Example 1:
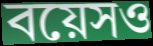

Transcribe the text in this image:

বয়েসও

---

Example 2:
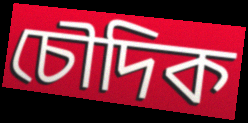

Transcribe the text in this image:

চৌদিক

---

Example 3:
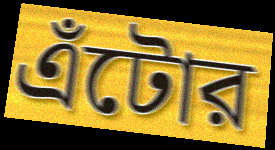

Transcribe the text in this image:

এঁটোর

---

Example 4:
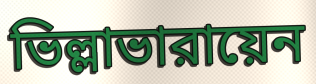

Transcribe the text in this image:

ভিল্লাভারায়েন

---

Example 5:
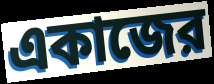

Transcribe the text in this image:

একাজের